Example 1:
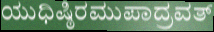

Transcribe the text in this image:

ಯುಧಿಷ್ಠಿರಮುಪಾದ್ರವತ್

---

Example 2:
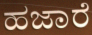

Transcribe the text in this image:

ಹಜಾರೆ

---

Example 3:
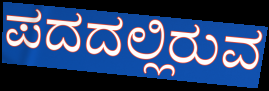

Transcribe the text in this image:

ಪದದಲ್ಲಿರುವ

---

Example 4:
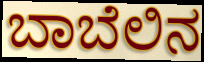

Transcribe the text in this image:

ಬಾಬೆಲಿನ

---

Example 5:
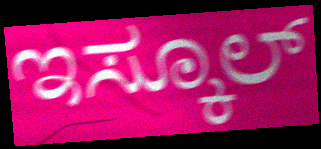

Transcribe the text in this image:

ಇಸ್ಕೂಲ್